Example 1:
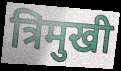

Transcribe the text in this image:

त्रिमुखी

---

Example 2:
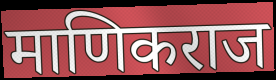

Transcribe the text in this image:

माणिकराज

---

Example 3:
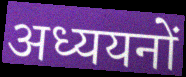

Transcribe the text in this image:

अध्ययनों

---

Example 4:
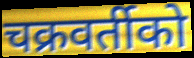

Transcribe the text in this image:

चक्रवर्तीको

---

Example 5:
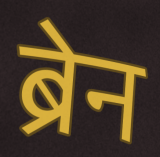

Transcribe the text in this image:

ब्रेन